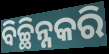
ବିଚ୍ଛିନ୍ନକରି